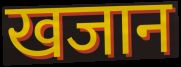
खजान